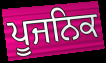
ਪੂਜਨਿਕ